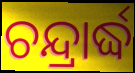
ଚନ୍ଦ୍ରାର୍ଦ୍ଧ